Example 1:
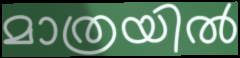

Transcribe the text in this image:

മാത്രയിൽ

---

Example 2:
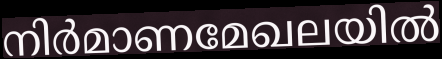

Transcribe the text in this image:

നിർമാണമേഖലയിൽ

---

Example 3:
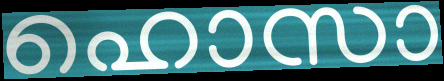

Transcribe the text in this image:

ഹൊസാ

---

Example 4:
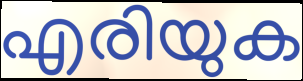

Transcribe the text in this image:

എരിയുക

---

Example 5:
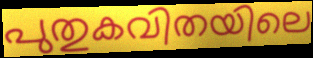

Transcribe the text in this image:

പുതുകവിതയിലെ